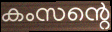
കംസന്റെ